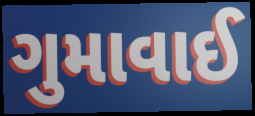
ગુમાવાઈ